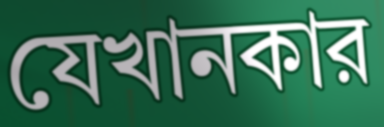
যেখানকার